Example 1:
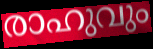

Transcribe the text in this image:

രാഹുവും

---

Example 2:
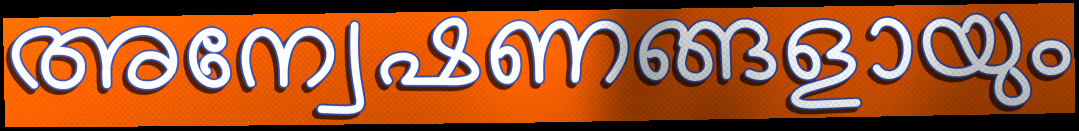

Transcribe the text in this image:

അന്വേഷണങ്ങളായും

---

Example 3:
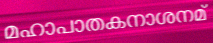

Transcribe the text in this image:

മഹാപാതകനാശനമ്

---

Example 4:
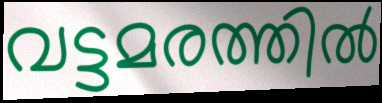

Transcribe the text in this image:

വട്ടമരത്തിൽ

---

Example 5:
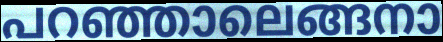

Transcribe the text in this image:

പറഞ്ഞാലെങ്ങനാ